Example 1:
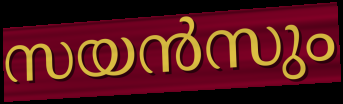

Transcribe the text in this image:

സയൻസും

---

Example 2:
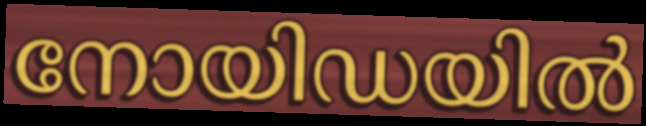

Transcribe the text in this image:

നോയിഡയിൽ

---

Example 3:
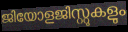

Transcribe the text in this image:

ജിയോളജിസ്റ്റുകളും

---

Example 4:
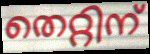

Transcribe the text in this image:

തെറ്റിന്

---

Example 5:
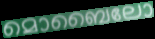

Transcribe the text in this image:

മൊബൈലോ